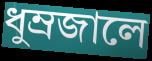
ধুম্রজালে